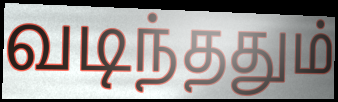
வடிந்ததும்